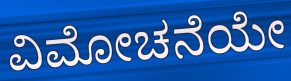
ವಿಮೋಚನೆಯೇ